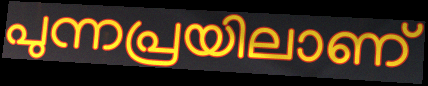
പുന്നപ്രയിലാണ്